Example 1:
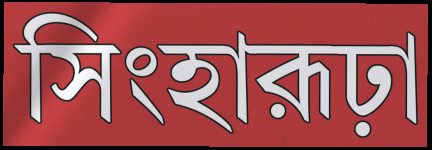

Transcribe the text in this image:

সিংহারূঢ়া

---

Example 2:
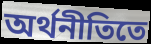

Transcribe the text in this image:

অর্থনীতিতে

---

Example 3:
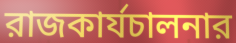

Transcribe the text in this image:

রাজকার্যচালনার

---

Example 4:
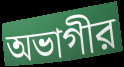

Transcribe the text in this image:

অভাগীর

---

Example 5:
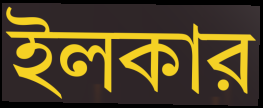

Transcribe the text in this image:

ইলকার